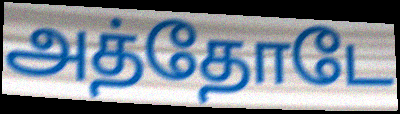
அத்தோடே